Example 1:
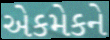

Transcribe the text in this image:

એકમેકને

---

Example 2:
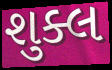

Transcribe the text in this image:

શુક્લ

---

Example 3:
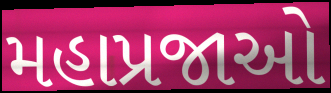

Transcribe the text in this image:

મહાપ્રજાઓ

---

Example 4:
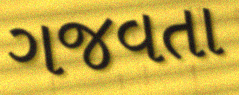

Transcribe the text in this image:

ગજવતા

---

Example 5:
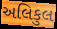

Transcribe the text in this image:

અલિકુલ